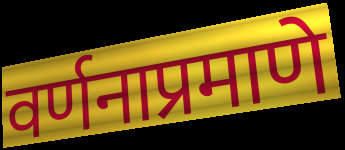
वर्णनाप्रमाणे